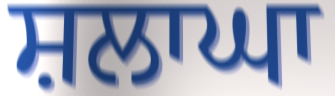
ਸ਼ਲਾਘਾ